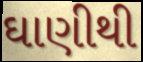
ઘાણીથી